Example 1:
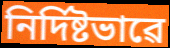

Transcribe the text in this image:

নিৰ্দিষ্টভাৱে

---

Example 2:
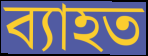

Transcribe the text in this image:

ব্যাহত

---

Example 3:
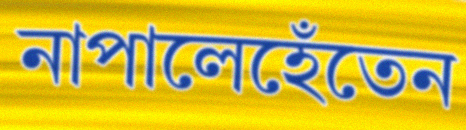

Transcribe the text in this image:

নাপালেহেঁতেন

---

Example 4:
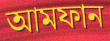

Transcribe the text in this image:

আমফান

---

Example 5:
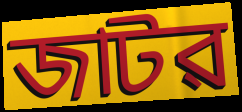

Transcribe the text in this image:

জাটৱ